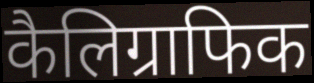
कैलिग्राफिक